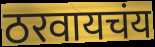
ठरवायचंय